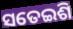
ସତେଇଶି